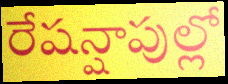
రేషన్షాపుల్లో